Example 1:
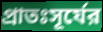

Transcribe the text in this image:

প্রাতঃসূর্যের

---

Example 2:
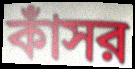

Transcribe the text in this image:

কাঁসর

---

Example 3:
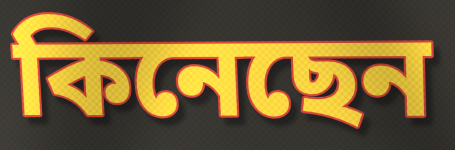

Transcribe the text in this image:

কিনেছেন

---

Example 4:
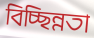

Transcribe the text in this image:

বিচ্ছিন্নতা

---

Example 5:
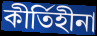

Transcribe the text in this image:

কীর্তিহীনা